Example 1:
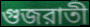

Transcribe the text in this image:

গুজরাতী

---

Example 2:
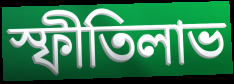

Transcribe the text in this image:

স্ফীতিলাভ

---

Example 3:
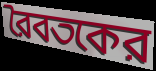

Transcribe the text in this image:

রৈবতকের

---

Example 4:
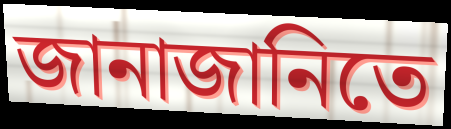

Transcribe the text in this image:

জানাজানিতে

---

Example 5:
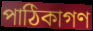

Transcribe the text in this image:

পাঠিকাগণ